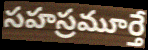
సహస్రమూర్తే